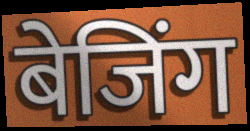
बेजिंग